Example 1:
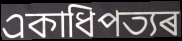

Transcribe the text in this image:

একাধিপত্যৰ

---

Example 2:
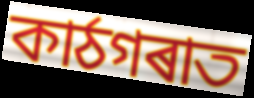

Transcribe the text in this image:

কাঠগৰাত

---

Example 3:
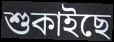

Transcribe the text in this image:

শুকাইছে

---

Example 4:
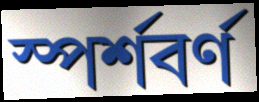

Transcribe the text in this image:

স্পৰ্শবৰ্ণ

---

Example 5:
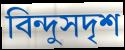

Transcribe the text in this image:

বিন্দুসদৃশ